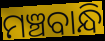
ମଞ୍ଚବାନ୍ଧି